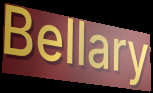
Bellary